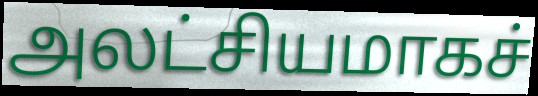
அலட்சியமாகச்